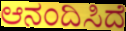
ಆನಂದಿಸಿದೆ